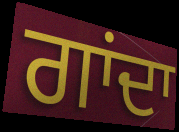
ਗਾਂਦਾ